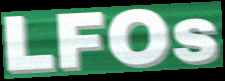
LFOs